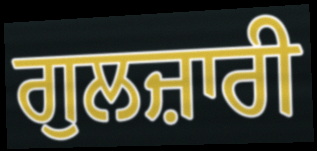
ਗੁਲਜ਼ਾਰੀ